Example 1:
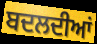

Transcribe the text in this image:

ਬਦਲਦੀਆਂ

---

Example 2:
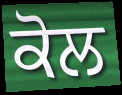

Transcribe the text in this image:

ਕੋਲ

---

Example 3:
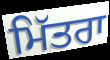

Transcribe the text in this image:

ਮਿੱਤਰਾ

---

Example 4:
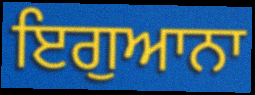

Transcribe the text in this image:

ਇਗੁਆਨਾ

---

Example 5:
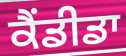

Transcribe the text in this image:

ਕੈਂਡੀਡਾ